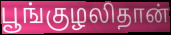
பூங்குழலிதான்